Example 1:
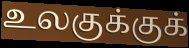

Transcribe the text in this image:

உலகுக்குக்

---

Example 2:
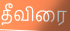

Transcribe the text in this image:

தீவிரை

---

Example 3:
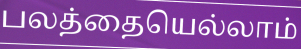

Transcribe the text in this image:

பலத்தையெல்லாம்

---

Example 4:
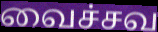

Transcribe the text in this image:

வைச்சவ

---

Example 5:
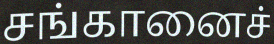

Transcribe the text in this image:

சங்கானைச்